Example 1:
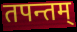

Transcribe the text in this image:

तपन्तम्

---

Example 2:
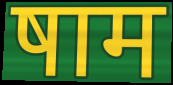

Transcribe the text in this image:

षाम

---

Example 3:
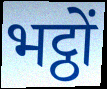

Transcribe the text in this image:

भट्ठों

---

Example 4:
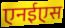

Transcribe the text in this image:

एनईएस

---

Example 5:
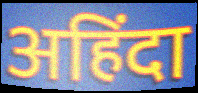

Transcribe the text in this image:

अहिंदा